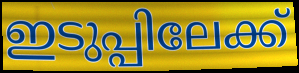
ഇടുപ്പിലേക്ക്